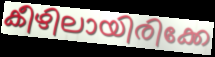
കീഴിലായിരിക്കേ